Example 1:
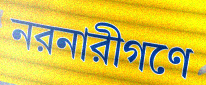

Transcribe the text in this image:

নরনারীগণে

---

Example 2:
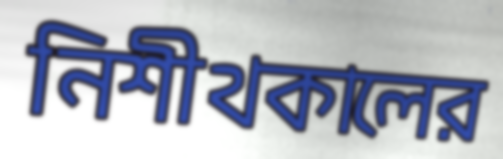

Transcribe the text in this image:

নিশীথকালের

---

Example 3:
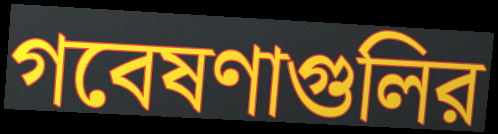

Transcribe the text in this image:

গবেষণাগুলির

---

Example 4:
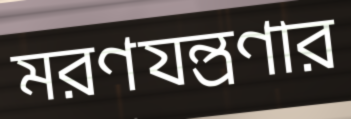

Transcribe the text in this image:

মরণযন্ত্রণার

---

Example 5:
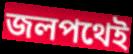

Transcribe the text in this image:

জলপথেই